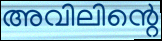
അവിലിന്റെ